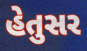
હેતુસર